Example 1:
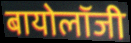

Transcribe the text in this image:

बायोलॉजी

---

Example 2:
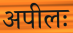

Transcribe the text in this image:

अपीलः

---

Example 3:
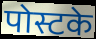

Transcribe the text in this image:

पोस्टके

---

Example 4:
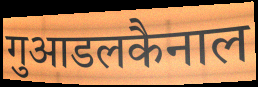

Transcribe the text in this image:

गुआडलकैनाल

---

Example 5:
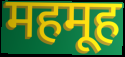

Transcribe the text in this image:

महमूह